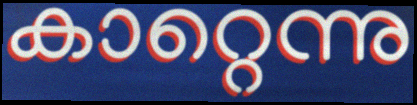
കാറ്റെന്നു